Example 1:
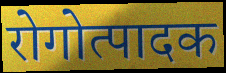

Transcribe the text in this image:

रोगोत्पादक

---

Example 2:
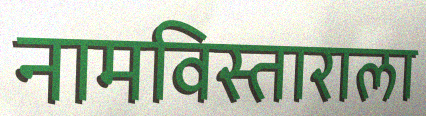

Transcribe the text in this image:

नामविस्ताराला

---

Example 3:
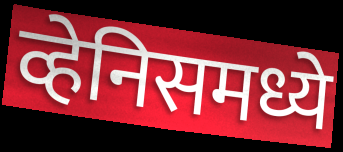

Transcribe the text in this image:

व्हेनिसमध्ये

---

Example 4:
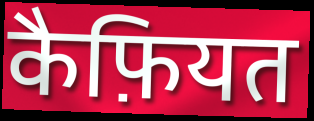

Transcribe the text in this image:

कैफ़ियत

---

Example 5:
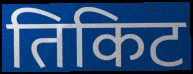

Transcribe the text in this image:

तिकिट